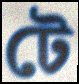
টে